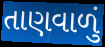
તાણવાળું